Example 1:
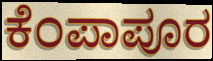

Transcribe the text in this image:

ಕೆಂಪಾಪೂರ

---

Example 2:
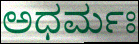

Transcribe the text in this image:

ಅಧರ್ಮಃ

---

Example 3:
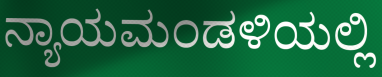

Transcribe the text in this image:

ನ್ಯಾಯಮಂಡಳಿಯಲ್ಲಿ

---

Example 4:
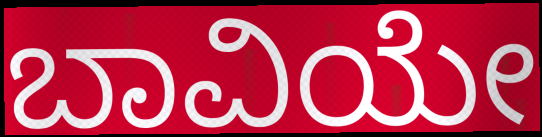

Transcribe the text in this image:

ಬಾವಿಯೇ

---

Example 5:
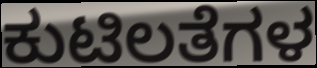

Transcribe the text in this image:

ಕುಟಿಲತೆಗಳ